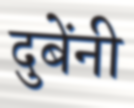
दुबेंनी